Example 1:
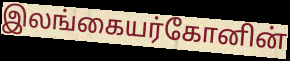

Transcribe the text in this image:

இலங்கையர்கோனின்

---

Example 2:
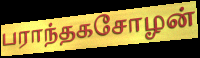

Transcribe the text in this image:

பராந்தகசோழன்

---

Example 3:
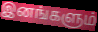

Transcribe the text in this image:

இனங்களும்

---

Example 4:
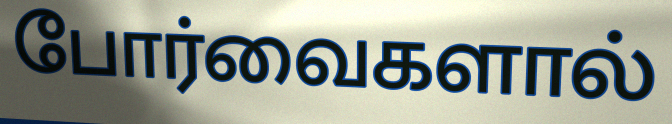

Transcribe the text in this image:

போர்வைகளால்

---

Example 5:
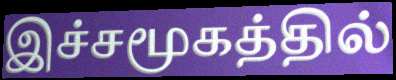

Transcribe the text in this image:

இச்சமூகத்தில்